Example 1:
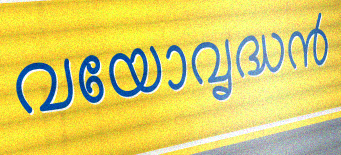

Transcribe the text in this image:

വയോവൃദ്ധൻ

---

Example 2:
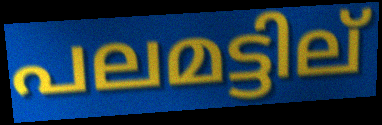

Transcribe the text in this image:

പലമട്ടില്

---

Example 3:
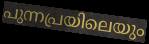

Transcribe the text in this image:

പുന്നപ്രയിലെയും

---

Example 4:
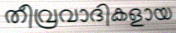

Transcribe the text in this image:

തീവ്രവാദികളായ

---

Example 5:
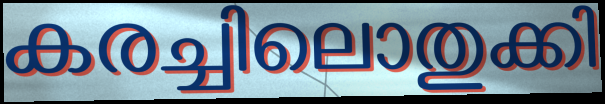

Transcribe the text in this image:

കരച്ചിലൊതുക്കി